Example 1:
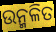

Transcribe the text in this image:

ଉନ୍ମଳିତ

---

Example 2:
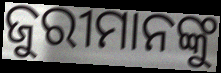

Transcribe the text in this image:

ଜୁରୀମାନଙ୍କୁ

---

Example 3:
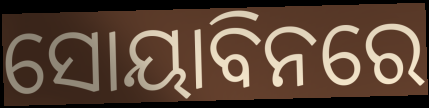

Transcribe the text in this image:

ସୋୟାବିନରେ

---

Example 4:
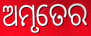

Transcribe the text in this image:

ଅମୃତେର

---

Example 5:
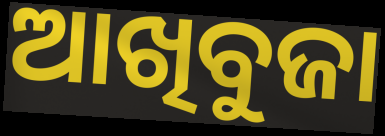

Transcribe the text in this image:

ଆଖିବୁଜା